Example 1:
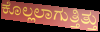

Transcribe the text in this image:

ಕೊಲ್ಲಲಾಗುತ್ತಿತ್ತು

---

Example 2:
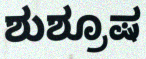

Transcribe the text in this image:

ಶುಶ್ರೂಷ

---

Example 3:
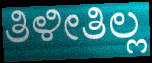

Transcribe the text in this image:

ತಿಳೀತಿಲ್ಲ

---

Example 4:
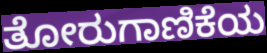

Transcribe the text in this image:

ತೋರುಗಾಣಿಕೆಯ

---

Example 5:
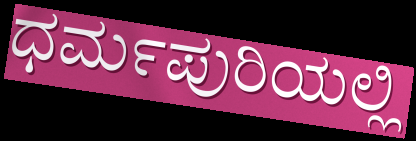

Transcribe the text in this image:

ಧರ್ಮಪುರಿಯಲ್ಲಿ